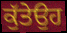
ਕੁੱਤੇਉਹ